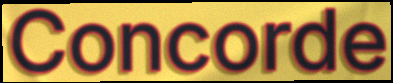
Concorde